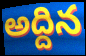
అద్దిన